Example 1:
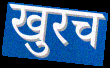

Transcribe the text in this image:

खुरच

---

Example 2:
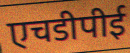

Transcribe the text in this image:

एचडीपीई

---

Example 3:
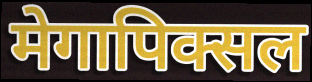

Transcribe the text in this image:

मेगापिक्सल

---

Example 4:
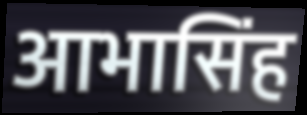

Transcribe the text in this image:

आभासिंह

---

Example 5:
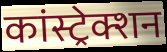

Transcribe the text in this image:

कांस्ट्रेक्शन